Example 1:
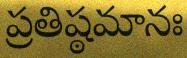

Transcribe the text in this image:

ప్రతిష్ఠమానః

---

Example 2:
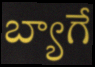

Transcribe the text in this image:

బ్యాగే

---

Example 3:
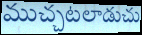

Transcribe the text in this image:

ముచ్చటలాడుచు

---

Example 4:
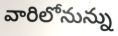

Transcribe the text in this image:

వారిలోనున్ను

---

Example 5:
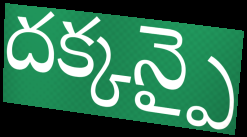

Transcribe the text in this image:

దక్కన్పై